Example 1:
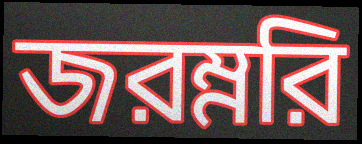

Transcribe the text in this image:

জরম্নরি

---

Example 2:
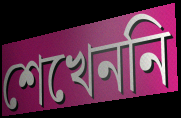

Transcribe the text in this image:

শেখেননি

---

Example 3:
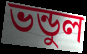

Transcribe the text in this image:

ভন্ডুল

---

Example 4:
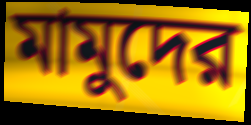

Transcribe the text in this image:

মামুদের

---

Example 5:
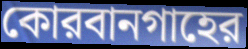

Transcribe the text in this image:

কোরবানগাহের